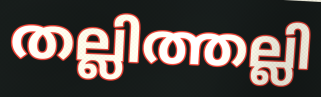
തല്ലിത്തല്ലി